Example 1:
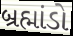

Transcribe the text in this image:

બ્રહ્માંડો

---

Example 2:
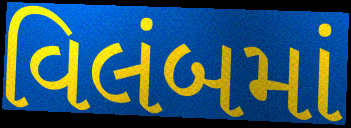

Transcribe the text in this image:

વિલંબમાં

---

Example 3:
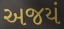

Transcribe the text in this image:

અજયં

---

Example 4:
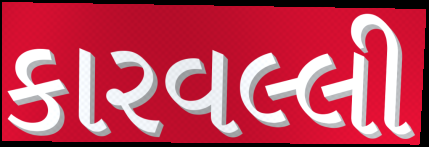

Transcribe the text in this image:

કારવલ્લી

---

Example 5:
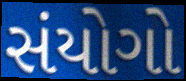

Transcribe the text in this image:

સંયોગો